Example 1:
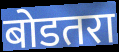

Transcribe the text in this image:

बोडतरा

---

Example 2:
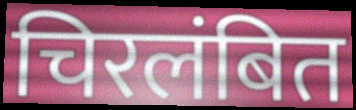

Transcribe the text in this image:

चिरलंबित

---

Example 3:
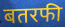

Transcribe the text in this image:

बतरफी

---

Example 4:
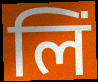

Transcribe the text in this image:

लिं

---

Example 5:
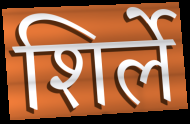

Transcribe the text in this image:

शिर्ले